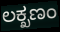
ಲಕ್ಖಣಂ